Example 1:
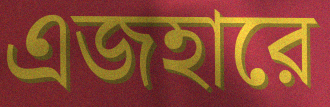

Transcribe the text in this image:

এজহারে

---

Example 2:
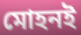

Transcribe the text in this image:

মোহনই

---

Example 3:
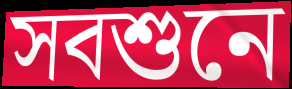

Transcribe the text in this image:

সবশুনে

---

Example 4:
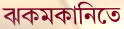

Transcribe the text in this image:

ঝকমকানিতে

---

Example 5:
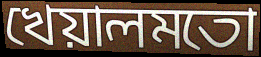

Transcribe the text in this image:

খেয়ালমতো